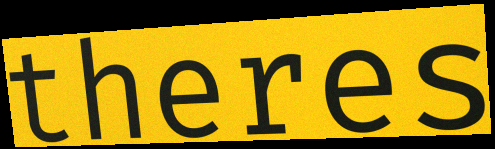
theres